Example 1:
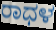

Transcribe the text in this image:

ರಾಧಳ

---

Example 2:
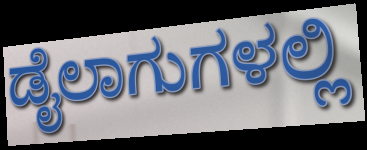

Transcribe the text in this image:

ಡೈಲಾಗುಗಳಲ್ಲಿ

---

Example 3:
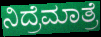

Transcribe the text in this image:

ನಿದ್ರೆಮಾತ್ರೆ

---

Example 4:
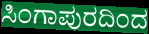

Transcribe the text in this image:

ಸಿಂಗಾಪುರದಿಂದ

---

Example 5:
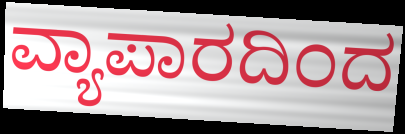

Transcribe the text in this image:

ವ್ಯಾಪಾರದಿಂದ